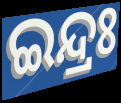
ଇନ୍ଦ୍ରଃ